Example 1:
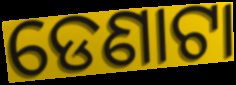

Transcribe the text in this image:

ଡେଣାଟା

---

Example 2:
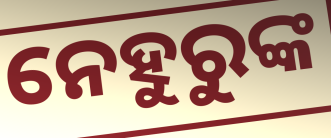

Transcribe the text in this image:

ନେହୁରୁଙ୍କ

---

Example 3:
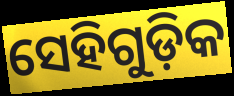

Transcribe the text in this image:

ସେହିଗୁଡ଼ିକ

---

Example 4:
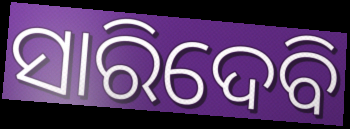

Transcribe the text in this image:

ସାରିଦେବି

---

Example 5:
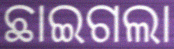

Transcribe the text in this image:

ଛାଇଗଲା